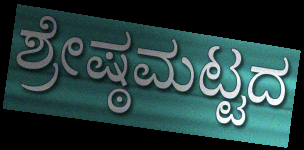
ಶ್ರೇಷ್ಠಮಟ್ಟದ